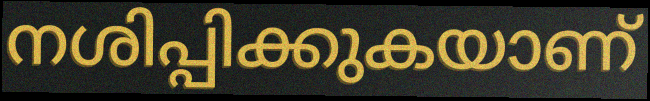
നശിപ്പിക്കുകയാണ്